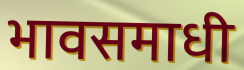
भावसमाधी